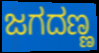
ಜಗದಣ್ಣ